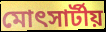
মোৎসার্টীয়